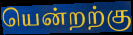
யென்றற்கு